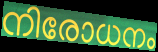
നിരോധനം